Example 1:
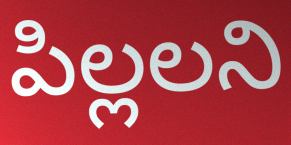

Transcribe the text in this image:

పిల్లలని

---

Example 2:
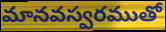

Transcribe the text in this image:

మానవస్వరముతో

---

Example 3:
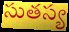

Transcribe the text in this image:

సుతస్య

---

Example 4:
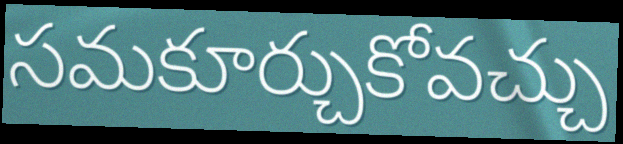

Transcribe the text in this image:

సమకూర్చుకోవచ్చు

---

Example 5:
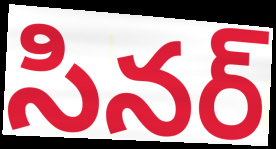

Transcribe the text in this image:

సినర్